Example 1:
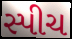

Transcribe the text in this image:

સ્પીચ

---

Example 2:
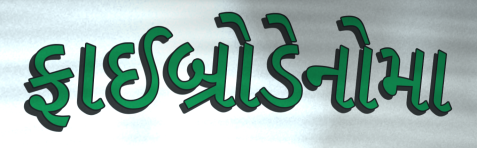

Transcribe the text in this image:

ફાઈબ્રોડેનોમા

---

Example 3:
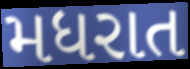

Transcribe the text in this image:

મધરાત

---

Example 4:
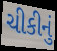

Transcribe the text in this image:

ચીકીનું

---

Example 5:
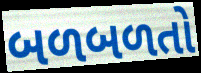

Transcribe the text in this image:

બળબળતો